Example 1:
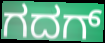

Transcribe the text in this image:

ಗದಗ್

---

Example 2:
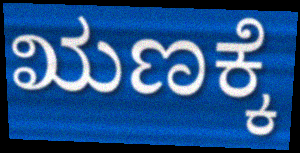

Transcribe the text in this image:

ಋಣಕ್ಕೆ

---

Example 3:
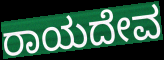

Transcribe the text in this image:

ರಾಯದೇವ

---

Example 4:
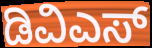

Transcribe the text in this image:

ಡಿವಿಎಸ್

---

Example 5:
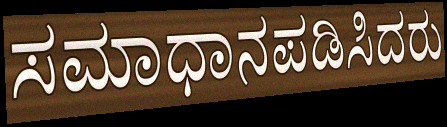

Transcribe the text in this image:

ಸಮಾಧಾನಪಡಿಸಿದರು